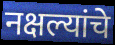
नक्षल्यांचे